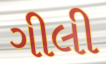
ગીલી